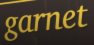
garnet